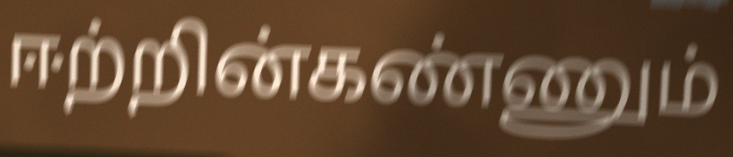
ஈற்றின்கண்ணும்